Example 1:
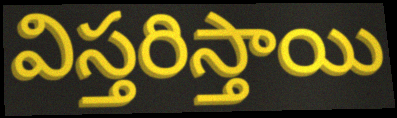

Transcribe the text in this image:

విస్తరిస్తాయి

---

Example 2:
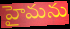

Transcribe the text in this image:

హైమను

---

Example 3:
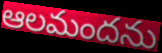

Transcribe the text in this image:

ఆలమందను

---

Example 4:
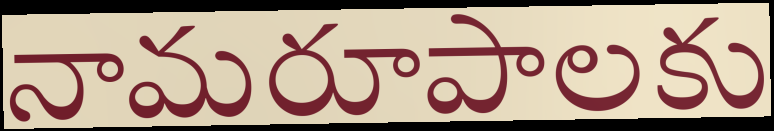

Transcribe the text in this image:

నామరూపాలకు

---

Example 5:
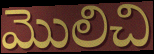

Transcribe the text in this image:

మొలిచి